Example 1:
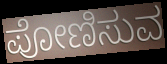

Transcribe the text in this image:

ಪೋಣಿಸುವ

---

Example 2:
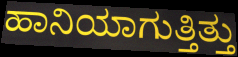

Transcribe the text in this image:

ಹಾನಿಯಾಗುತ್ತಿತ್ತು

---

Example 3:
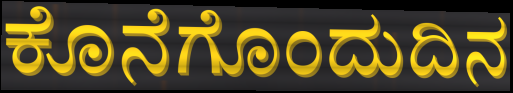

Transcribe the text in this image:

ಕೊನೆಗೊಂದುದಿನ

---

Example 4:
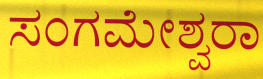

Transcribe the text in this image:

ಸಂಗಮೇಶ್ವರಾ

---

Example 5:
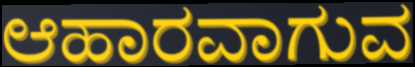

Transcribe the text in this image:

ಆಹಾರವಾಗುವ